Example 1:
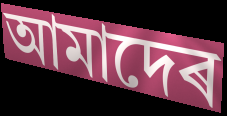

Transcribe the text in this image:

আমাদেৰ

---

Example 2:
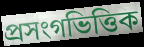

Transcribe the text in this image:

প্ৰসংগভিত্তিক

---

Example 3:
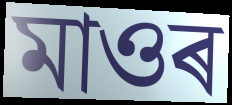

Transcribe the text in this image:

মাওৰ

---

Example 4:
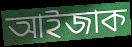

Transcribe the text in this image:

আইজাক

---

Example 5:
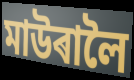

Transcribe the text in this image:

মাউৰালৈ